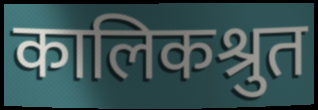
कालिकश्रुत